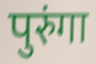
पुरुंगा